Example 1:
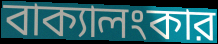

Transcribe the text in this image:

বাক্যালংকার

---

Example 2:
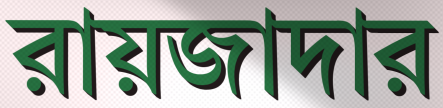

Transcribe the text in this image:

রায়জাদার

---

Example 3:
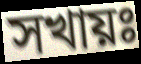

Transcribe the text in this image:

সখায়ঃ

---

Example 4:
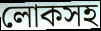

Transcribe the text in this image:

লোকসহ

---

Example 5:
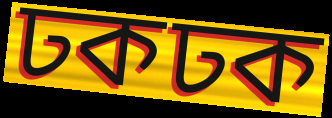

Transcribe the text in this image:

ঢকঢক